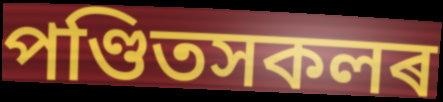
পণ্ডিতসকলৰ